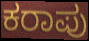
ಕರಾಪು